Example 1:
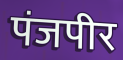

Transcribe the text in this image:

पंजपीर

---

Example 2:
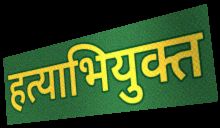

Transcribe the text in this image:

हत्याभियुक्त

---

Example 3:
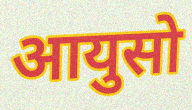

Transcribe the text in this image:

आयुसो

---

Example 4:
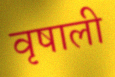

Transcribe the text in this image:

वृषाली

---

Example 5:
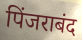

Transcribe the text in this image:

पिंजराबंद